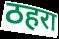
ठहरा